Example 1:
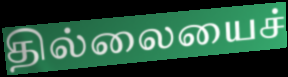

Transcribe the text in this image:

தில்லையைச்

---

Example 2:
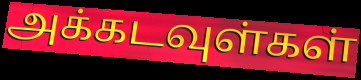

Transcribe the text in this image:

அக்கடவுள்கள்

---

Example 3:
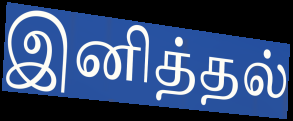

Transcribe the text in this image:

இனித்தல்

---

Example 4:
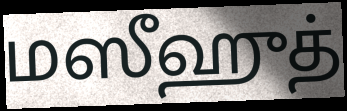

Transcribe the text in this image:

மஸீஹுத்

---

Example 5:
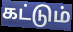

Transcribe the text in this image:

கட்டும்